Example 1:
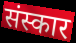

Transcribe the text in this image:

संस्कार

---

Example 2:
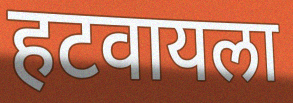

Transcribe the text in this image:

हटवायला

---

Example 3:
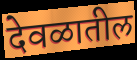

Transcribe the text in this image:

देवळातील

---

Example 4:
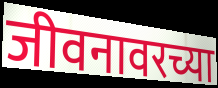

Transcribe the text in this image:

जीवनावरच्या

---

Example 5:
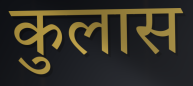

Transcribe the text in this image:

कुलास